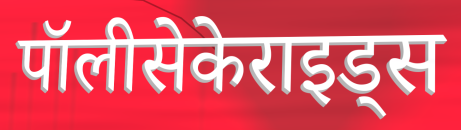
पॉलीसेकेराइड्स